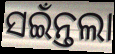
ସଇଁନ୍ତଲା